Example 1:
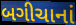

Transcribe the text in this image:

બગીચાનાં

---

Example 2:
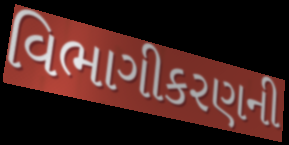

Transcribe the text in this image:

વિભાગીકરણની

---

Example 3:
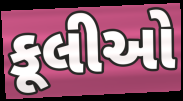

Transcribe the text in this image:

કૂલીઓ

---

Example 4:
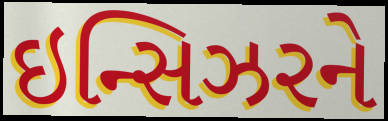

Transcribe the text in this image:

ઇન્સિઝરને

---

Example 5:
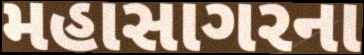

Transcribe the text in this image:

મહાસાગરના